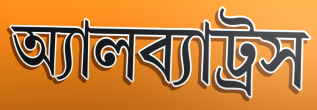
অ্যালব্যাট্রস